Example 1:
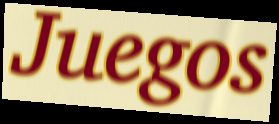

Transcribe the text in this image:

Juegos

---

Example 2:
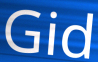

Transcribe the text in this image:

Gid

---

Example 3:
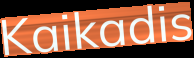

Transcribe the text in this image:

Kaikadis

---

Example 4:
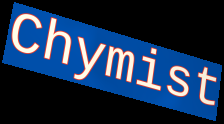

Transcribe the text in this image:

Chymist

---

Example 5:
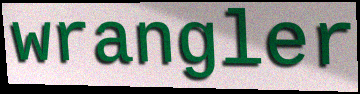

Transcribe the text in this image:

wrangler